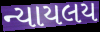
ન્યાયલય